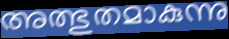
അത്ഭുതമാകുന്നു